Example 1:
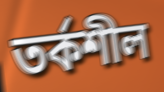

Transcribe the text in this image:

তর্কশীল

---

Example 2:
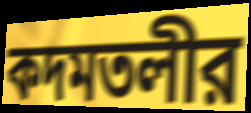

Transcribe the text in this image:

কদমতলীর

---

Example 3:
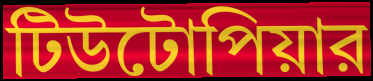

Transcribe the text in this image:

টিউটোপিয়ার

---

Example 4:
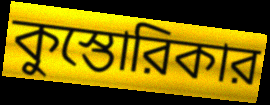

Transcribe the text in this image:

কুস্তোরিকার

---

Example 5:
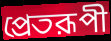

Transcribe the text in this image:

প্রেতরূপী